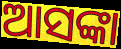
ଆସଙ୍କା